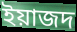
ইয়াজদ